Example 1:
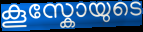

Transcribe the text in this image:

കൂസ്കോയുടെ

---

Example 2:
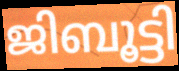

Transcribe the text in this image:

ജിബൂട്ടി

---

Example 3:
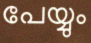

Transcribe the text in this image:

പേയ്യും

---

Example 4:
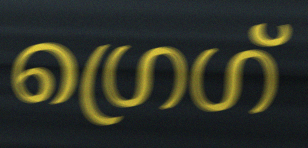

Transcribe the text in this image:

ഗ്രെഗ്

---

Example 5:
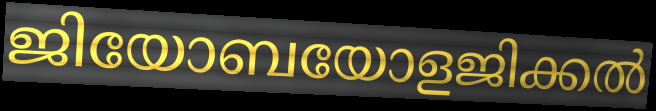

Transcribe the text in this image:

ജിയോബയോളജിക്കൽ